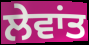
ਲੇਵਾਂਤ